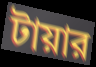
টায়ার